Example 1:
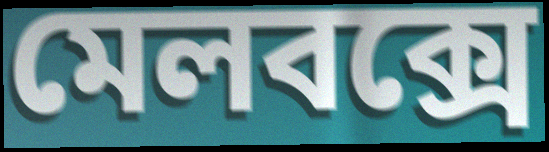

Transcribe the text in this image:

মেলবক্সে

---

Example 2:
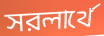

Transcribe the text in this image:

সরলার্থে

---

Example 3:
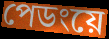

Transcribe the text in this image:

পেডংয়ে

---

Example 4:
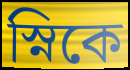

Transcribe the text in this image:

স্নিকে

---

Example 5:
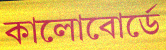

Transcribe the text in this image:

কালোবোর্ডে